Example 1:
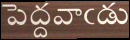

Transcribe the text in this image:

పెద్దవాఁడు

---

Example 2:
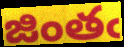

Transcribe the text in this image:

జింతఁ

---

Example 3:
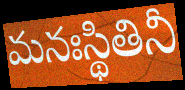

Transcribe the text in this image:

మనఃస్థితినీ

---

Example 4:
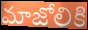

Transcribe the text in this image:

మాజోలికి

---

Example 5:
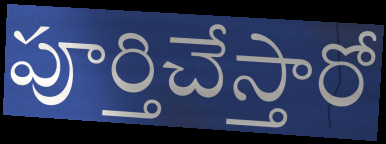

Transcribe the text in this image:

పూర్తిచేస్తారో